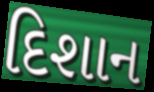
દિશાન